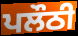
ਪਲੌਠੀ